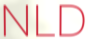
NLD